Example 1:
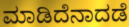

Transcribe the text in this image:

ಮಾಡಿದೆನಾದಡೆ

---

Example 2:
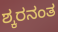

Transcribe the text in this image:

ಶ್ಕರನಂತ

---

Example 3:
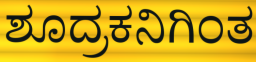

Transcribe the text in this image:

ಶೂದ್ರಕನಿಗಿಂತ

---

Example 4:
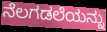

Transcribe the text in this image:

ನೆಲಗಡಲೆಯನ್ನು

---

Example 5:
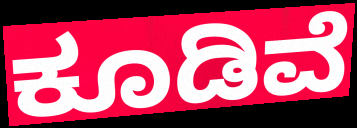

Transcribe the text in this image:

ಕೂಡಿವೆ